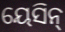
ୟେସିନ୍